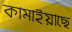
কামাইয়াছে